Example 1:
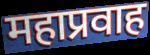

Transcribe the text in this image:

महाप्रवाह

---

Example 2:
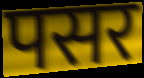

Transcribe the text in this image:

पसर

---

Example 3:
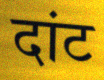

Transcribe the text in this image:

दांट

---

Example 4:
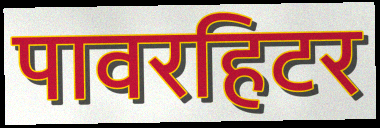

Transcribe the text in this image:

पावरहिटर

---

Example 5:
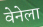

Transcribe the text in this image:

वेनेला